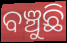
ବଞ୍ଚୁଛି